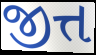
જીત્ત